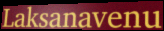
Laksanavenu